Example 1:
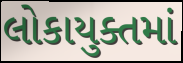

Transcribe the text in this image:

લોકાયુક્તમાં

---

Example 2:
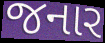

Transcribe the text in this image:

જનાર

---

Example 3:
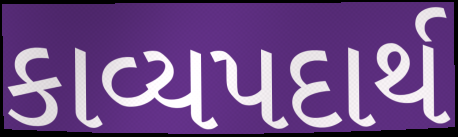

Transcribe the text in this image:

કાવ્યપદાર્થ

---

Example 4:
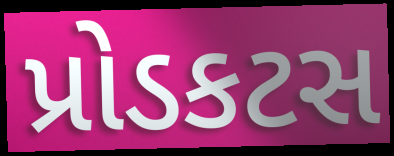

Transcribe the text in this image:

પ્રોડકટસ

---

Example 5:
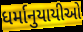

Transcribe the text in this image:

ધર્માનુયાયીઓ